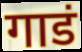
गाडं